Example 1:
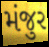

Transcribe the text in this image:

મંજુર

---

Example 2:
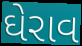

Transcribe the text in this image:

ઘેરાવ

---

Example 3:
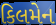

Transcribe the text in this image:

કિલમેન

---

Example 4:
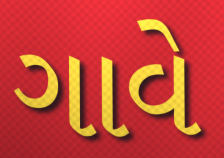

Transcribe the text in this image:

ગાવે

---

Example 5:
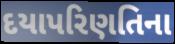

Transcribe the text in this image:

દયાપરિણતિના